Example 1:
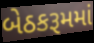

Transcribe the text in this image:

બેઠકરૂમમાં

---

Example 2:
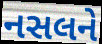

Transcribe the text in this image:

નસલને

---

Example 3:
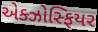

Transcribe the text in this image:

એક્ઝોસ્ફિયર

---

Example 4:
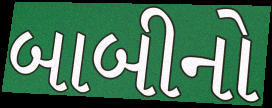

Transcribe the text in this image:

બાબીનો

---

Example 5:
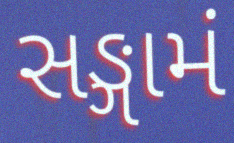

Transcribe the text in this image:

સઙ્ગામં